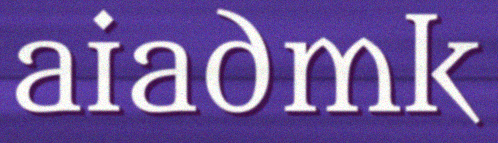
aiadmk